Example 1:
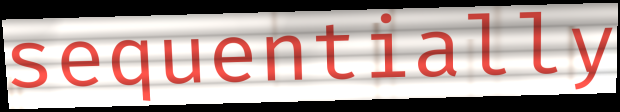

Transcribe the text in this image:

sequentially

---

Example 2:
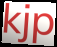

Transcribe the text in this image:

kjp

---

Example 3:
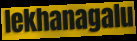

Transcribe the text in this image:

lekhanagalu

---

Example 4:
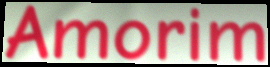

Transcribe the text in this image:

Amorim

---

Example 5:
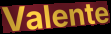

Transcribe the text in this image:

Valente